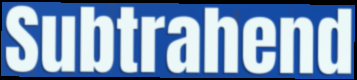
Subtrahend